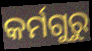
କର୍ମଗୁରୁ